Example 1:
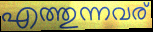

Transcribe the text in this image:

എത്തുന്നവര്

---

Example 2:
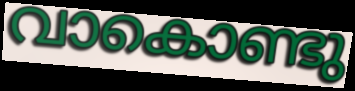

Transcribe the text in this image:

വാകൊണ്ടു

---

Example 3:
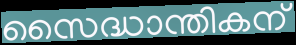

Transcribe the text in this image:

സൈദ്ധാന്തികന്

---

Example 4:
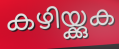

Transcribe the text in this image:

കഴിയ്ക്കുക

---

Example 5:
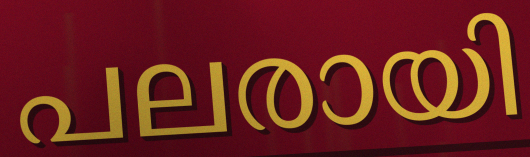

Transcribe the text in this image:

പലരായി